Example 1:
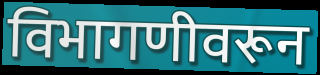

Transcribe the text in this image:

विभागणीवरून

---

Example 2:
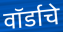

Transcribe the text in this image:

वॉर्डाचे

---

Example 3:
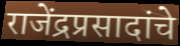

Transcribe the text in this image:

राजेंद्रप्रसादांचे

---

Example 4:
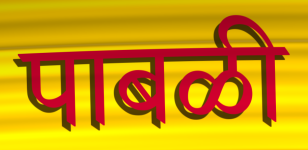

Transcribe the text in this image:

पाबळी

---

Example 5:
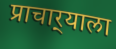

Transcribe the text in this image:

प्राचार्याला